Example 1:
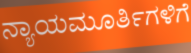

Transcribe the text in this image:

ನ್ಯಾಯಮೂರ್ತಿಗಳಿಗೆ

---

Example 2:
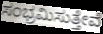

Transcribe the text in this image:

ಸಂಭ್ರಮಿಸುತ್ತೇವೆ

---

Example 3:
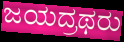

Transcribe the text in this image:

ಜಯದ್ರಥರು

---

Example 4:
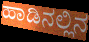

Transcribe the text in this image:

ಹಾಡಿನಲ್ಲಿನ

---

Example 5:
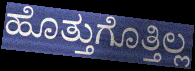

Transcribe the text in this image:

ಹೊತ್ತುಗೊತ್ತಿಲ್ಲ